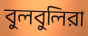
বুলবুলিরা